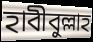
হাবীবুল্লাহ